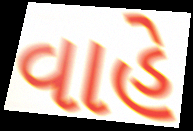
વાહે